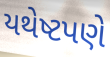
યથેષ્ટપણે